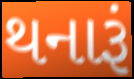
થનારૂં